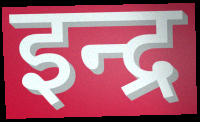
इन्द्र